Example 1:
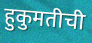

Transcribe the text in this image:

हुकुमतीची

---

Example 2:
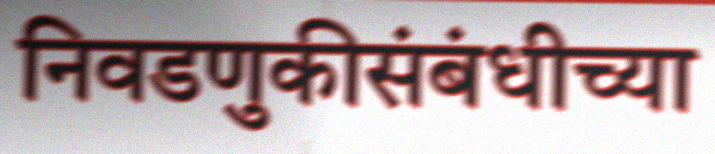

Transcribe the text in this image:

निवडणुकीसंबंधीच्या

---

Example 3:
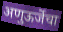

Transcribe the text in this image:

अणुऊर्जेचा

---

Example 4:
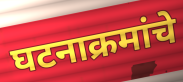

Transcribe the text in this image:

घटनाक्रमांचे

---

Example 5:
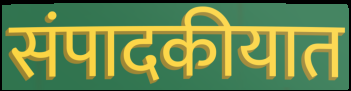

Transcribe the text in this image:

संपादकीयात